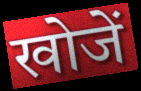
खोजें